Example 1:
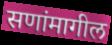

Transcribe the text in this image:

सणांमागील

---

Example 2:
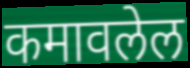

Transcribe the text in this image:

कमावलेल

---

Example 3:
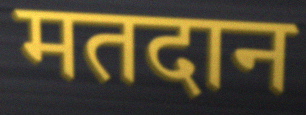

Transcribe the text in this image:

मतदान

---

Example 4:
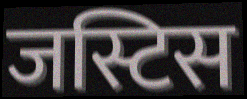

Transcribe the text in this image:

जस्टिस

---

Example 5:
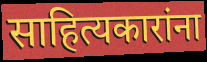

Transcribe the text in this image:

साहित्यकारांना